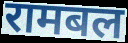
रामबल